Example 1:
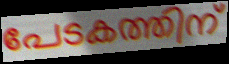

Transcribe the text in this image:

പേടകത്തിന്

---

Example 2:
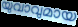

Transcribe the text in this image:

യുവാവുമായ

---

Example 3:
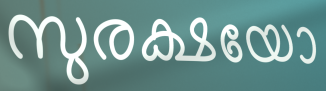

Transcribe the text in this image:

സുരക്ഷയോ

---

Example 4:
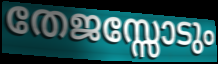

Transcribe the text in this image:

തേജസ്സോടും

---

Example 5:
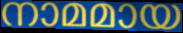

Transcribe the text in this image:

നാമമായ